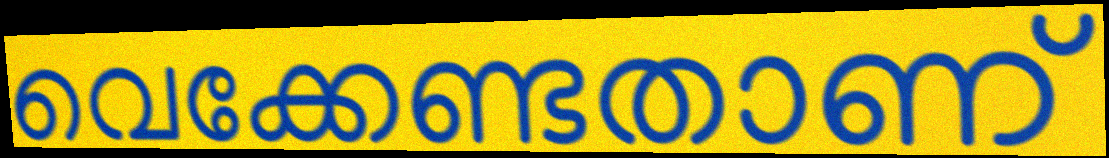
വെക്കേണ്ടതാണ്